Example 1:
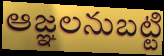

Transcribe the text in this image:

ఆజ్ఞలనుబట్టి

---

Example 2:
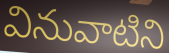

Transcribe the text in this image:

వినువాటిని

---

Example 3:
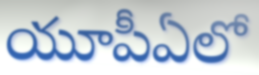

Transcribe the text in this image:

యూపీఏలో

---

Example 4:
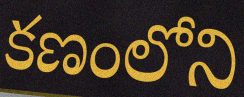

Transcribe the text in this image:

కణంలోని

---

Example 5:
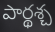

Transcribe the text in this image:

పార్థశ్చ